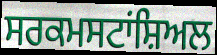
ਸਰਕਮਸਟਾਂਸ਼ਿਅਲ